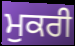
ਮੁਕਰੀ